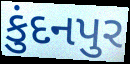
કુંદનપુર